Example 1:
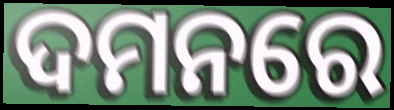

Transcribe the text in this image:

ଦମନରେ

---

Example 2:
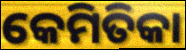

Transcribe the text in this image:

କେମିତିକା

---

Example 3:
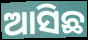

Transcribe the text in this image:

ଆସିଛ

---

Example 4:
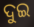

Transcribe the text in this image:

ଦୁଇ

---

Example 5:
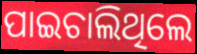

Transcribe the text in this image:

ପାଇଚାଲିଥିଲେ